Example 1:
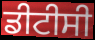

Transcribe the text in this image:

ਡੀਟੀਸੀ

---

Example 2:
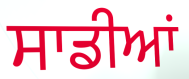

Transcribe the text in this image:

ਸਾਡੀਆਂ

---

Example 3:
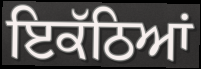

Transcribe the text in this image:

ਇਕੱਠਿਆਂ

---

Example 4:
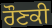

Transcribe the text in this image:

ਰੌਣਕੀ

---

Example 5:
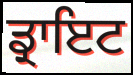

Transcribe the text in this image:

ਡ੍ਰਾਇਟ